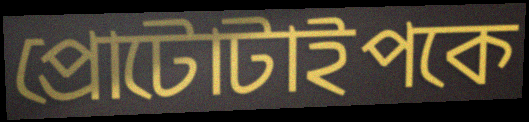
প্রোটোটাইপকে